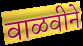
वाळवीने